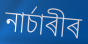
নাৰ্চাৰীৰ